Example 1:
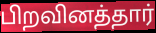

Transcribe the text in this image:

பிறவினத்தார்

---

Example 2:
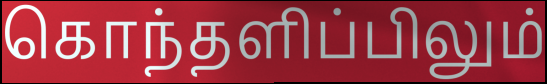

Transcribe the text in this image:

கொந்தளிப்பிலும்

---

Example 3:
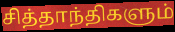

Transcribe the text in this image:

சித்தாந்திகளும்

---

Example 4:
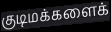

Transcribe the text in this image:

குடிமக்களைக்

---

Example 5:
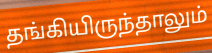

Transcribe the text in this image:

தங்கியிருந்தாலும்